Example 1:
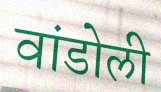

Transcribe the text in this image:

वांडोली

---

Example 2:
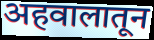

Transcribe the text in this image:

अहवालातून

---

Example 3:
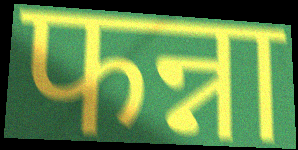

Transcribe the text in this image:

फन्ना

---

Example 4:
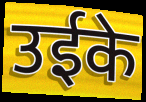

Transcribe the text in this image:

उईके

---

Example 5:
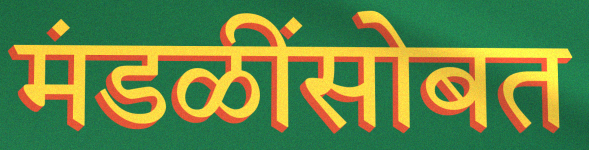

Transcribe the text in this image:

मंडळींसोबत